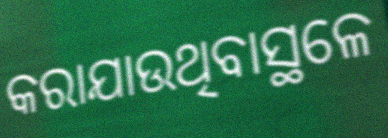
କରାଯାଉଥିବାସ୍ଥଳେ